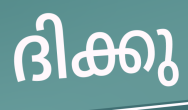
ദിക്കു